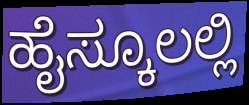
ಹೈಸ್ಕೂಲಲ್ಲಿ